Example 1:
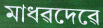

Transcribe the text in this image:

মাধৱদেৱে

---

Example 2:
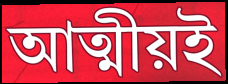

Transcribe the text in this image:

আত্মীয়ই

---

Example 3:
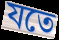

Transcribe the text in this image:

যতে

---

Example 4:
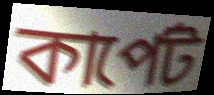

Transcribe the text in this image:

কাৰ্পেট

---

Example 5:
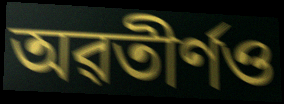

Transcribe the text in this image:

অৱতীৰ্ণও